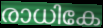
രാധികേ